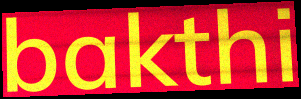
bakthi